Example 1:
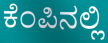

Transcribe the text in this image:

ಕೆಂಪಿನಲ್ಲಿ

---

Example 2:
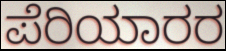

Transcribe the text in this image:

ಪೆರಿಯಾರರ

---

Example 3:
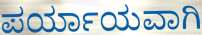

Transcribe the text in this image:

ಪರ್ಯಾಯವಾಗಿ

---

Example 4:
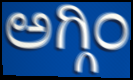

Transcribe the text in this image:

ಅಗ್ಗಿಂ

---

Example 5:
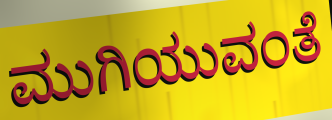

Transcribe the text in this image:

ಮುಗಿಯುವಂತೆ